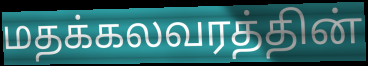
மதக்கலவரத்தின்